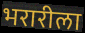
भरारीला